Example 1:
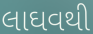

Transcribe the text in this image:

લાઘવથી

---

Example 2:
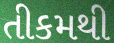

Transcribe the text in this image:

તીકમથી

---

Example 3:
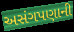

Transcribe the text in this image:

અસંગપણાની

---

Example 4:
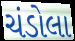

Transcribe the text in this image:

ચંડોલા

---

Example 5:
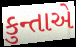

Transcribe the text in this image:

કુન્તાએ